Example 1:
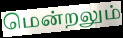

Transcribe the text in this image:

மென்றலும்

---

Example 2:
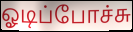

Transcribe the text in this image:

ஓடிப்போச்சு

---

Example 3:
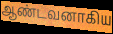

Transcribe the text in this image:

ஆண்டவனாகிய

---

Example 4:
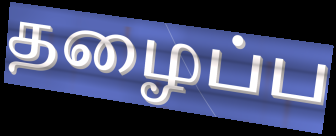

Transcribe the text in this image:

தழைப்ப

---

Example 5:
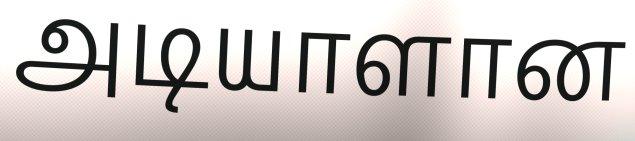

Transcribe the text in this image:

அடியாளான